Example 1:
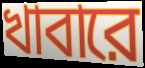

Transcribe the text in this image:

খাবারে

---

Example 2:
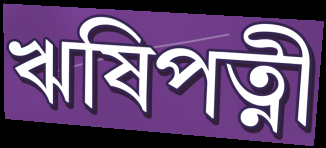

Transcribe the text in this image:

ঋষিপত্নী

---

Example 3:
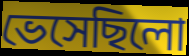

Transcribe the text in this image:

ভেসেছিলো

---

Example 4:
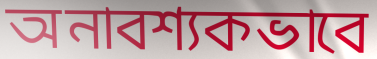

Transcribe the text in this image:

অনাবশ্যকভাবে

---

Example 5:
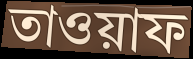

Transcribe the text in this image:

তাওয়াফ